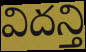
విదన్తి